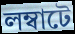
লম্বাটে